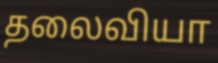
தலைவியா